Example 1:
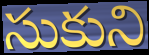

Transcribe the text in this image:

సుకుని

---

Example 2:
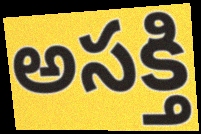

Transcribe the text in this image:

అసక్తి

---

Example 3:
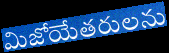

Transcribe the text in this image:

మిజోయేతరులను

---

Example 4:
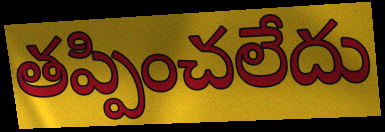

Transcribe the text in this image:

తప్పించలేదు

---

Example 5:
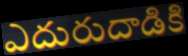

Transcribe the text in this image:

ఎదురుదాడికి